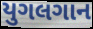
યુગલગાન